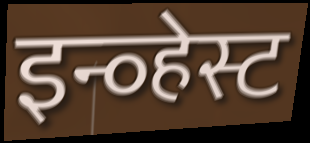
इन्व्हेस्ट